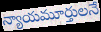
న్యాయమూర్తులనే